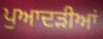
ਪੁਆਦੜੀਆਂ